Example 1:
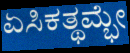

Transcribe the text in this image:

ಏಸಿಕತ್ಥಮ್ಭೇ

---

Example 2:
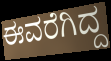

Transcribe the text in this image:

ಈವರೆಗಿದ್ದ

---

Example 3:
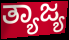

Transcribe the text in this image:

ತ್ಯಾಜ್ಯ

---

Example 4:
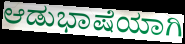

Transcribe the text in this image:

ಆಡುಭಾಷೆಯಾಗಿ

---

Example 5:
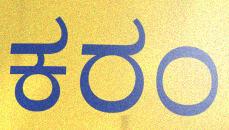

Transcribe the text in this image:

ಕರಂ